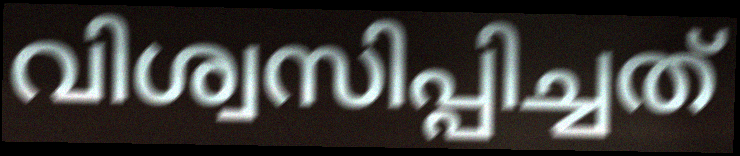
വിശ്വസിപ്പിച്ചത്